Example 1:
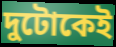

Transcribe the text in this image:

দুটোকেই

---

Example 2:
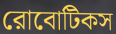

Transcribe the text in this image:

রোবোটিকস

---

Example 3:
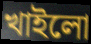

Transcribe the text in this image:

খাইলো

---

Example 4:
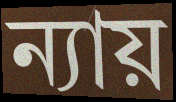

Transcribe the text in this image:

ন্যায়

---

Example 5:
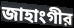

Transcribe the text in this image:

জাহাংগীর